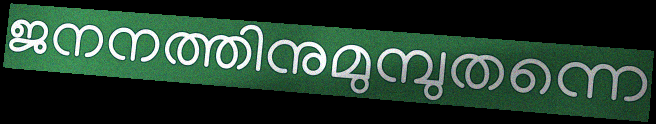
ജനനത്തിനുമുമ്പുതന്നെ